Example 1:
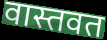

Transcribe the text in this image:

वास्‍तवत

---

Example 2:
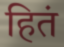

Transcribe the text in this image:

हितं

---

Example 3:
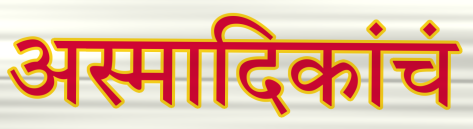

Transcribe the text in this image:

अस्मादिकांचं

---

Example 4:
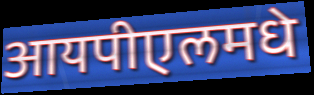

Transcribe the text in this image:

आयपीएलमधे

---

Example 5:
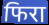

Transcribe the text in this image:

फिरा